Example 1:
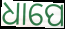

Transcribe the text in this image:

ଧାପେ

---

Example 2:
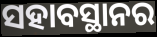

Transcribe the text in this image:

ସହାବସ୍ଥାନର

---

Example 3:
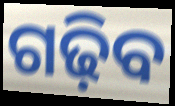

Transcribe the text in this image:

ଗଢ଼ିବ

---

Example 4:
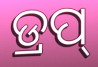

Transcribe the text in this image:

ଡ୍ରପ୍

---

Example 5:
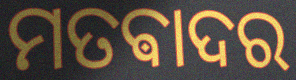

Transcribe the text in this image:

ମତଵାଦର